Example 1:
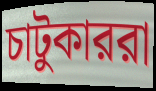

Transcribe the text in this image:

চাটুকাররা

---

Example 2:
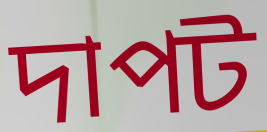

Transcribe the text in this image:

দাপট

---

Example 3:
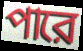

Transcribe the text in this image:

পারে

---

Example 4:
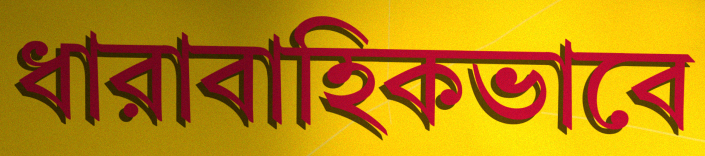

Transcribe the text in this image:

ধারাবাহিকভাবে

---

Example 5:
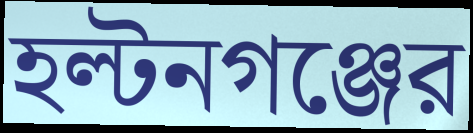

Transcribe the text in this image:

হল্টনগঞ্জের